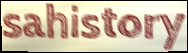
sahistory